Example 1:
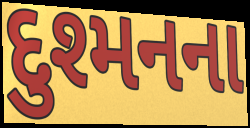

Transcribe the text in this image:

દુશ્મનના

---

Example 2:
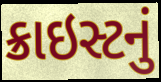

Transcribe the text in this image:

ક્રાઇસ્ટનું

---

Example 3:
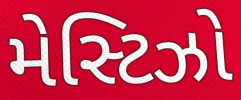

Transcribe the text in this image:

મેસ્ટિઝો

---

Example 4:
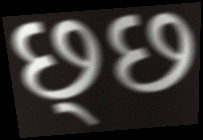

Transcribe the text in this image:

છ્છ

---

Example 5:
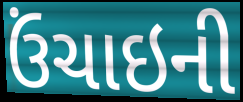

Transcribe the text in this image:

ઉંચાઇની